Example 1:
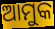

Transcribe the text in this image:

ଆମୁକ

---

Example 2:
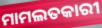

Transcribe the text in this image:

ମାମଲତକାରୀ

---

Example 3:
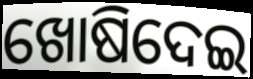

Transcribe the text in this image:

ଖୋଷିଦେଇ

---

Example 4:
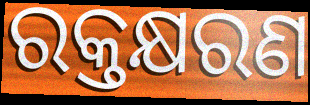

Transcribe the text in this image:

ରକ୍ତକ୍ଷରଣ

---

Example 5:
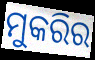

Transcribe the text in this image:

ମୁକରିର